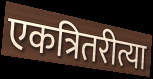
एकत्रितरीत्या